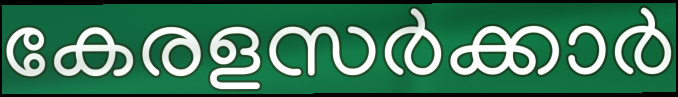
കേരളസർക്കാർ